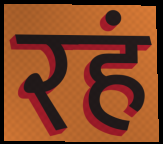
रहं